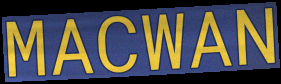
MACWAN